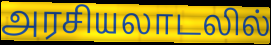
அரசியலாடலில்